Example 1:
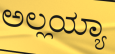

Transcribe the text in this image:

ಅಲ್ಲಯ್ಯಾ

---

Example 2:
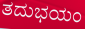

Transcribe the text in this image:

ತದುಭಯಂ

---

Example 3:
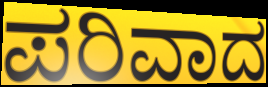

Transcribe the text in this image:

ಪರಿವಾದ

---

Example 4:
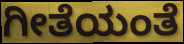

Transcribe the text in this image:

ಗೀತೆಯಂತೆ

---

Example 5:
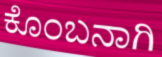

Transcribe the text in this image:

ಕೊಂಬನಾಗಿ